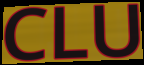
CLU